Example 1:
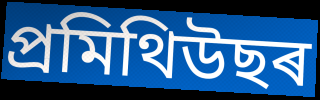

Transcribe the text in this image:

প্ৰমিথিউছৰ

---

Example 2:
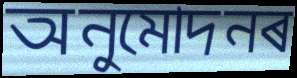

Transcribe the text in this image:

অনুমোদনৰ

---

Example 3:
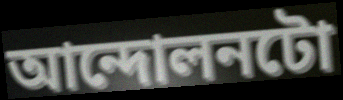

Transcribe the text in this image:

আন্দোলনটো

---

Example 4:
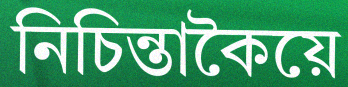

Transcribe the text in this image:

নিচিন্তাকৈয়ে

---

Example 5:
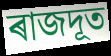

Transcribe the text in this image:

ৰাজদূত